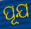
ପୂଯ